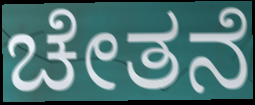
ಚೇತನೆ